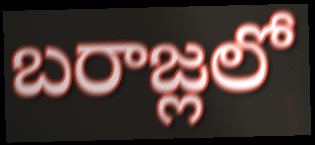
బరాజ్లలో